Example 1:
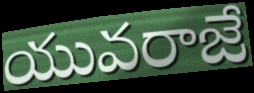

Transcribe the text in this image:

యువరాజే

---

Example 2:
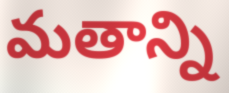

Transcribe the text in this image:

మతాన్ని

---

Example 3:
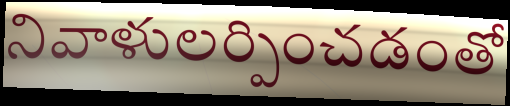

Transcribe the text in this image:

నివాళులర్పించడంతో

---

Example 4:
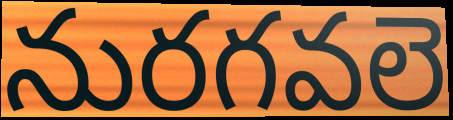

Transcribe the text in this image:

నురగవలె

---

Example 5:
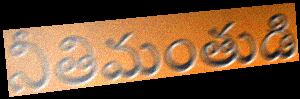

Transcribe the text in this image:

నీతిమంతుడి